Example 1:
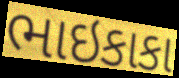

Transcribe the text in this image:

ભાઇકાકા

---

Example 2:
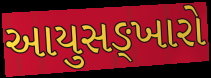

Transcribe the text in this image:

આયુસઙ્ખારો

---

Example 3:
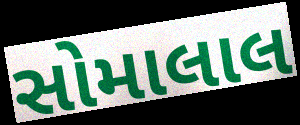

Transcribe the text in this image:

સોમાલાલ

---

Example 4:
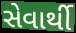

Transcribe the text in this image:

સેવાર્થી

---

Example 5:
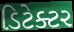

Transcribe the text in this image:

ડિટેક્ટર